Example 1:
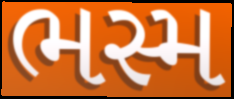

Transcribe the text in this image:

ભસ્મ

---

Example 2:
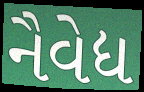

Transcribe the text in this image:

નૈવેદ્ય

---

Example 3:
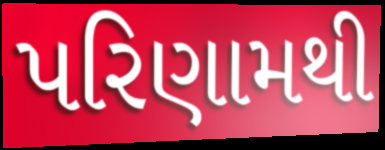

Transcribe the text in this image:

પરિણામથી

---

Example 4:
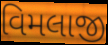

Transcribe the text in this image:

વિમલાજી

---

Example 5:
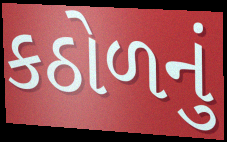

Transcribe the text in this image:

કઠોળનું